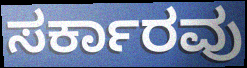
ಸರ್ಕಾರವು